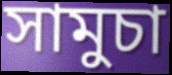
সামুচা